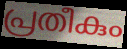
പ്രതീകും